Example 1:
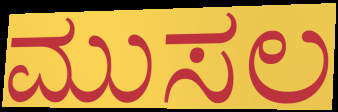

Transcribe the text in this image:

ಮುಸಲ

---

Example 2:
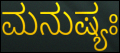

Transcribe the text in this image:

ಮನುಷ್ಯಃ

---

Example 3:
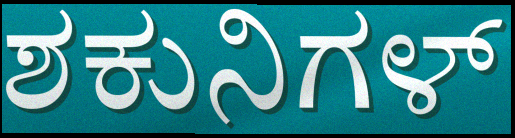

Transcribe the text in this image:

ಶಕುನಿಗಳ್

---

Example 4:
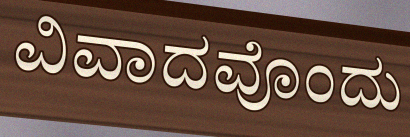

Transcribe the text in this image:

ವಿವಾದವೊಂದು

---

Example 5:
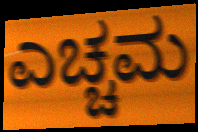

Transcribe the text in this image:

ಎಚ್ಚಮ